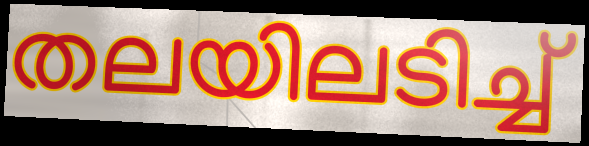
തലയിലടിച്ച്